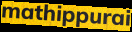
mathippurai